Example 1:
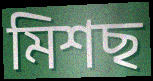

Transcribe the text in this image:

মিশছ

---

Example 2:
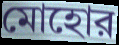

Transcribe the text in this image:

মোহোর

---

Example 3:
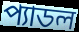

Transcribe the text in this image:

প্যাডল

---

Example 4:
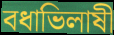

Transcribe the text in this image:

বধাভিলাষী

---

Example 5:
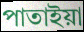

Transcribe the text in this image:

পাতাইয়া